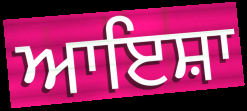
ਆਇਸ਼ਾ